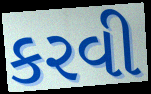
કરવી